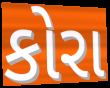
કોરા